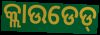
କ୍ଲାଉଡେଡ୍